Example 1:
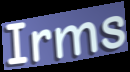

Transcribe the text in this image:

Irms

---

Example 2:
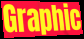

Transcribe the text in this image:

Graphic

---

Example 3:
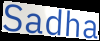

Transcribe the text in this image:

Sadha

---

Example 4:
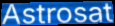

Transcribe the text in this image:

Astrosat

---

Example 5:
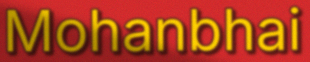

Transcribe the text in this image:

Mohanbhai